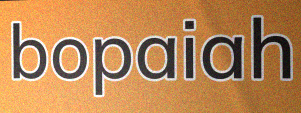
bopaiah